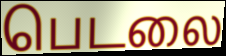
பெடலை